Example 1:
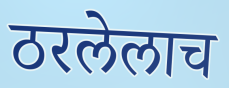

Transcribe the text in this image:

ठरलेलाच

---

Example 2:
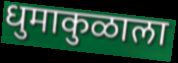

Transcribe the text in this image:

धुमाकुळाला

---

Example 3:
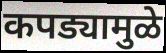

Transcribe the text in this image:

कपड्यामुळे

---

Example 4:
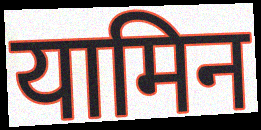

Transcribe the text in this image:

यामिन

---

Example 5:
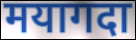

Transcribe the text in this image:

मयागदा